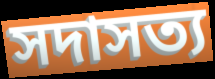
সদাসত্য